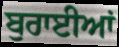
ਬੁਰਾਈਆਂ